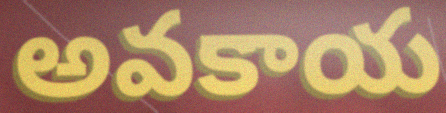
అవకాయ